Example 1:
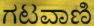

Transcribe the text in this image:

ಗಟವಾಣಿ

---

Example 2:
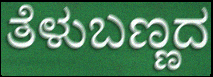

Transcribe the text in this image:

ತೆಳುಬಣ್ಣದ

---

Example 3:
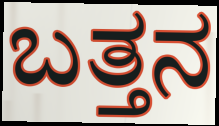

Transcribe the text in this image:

ಬತ್ತನ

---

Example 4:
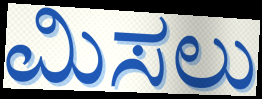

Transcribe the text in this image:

ಮಿಸಲು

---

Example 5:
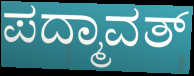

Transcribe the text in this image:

ಪದ್ಮಾವತ್